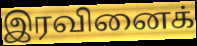
இரவினைக்